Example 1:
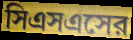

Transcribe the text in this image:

সিএসএসের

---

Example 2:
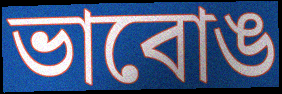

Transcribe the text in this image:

ভাবোঙ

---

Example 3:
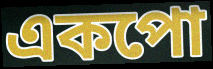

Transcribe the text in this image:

একপো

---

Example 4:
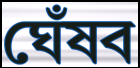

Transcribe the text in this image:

ঘেঁষব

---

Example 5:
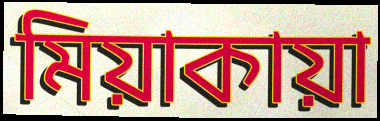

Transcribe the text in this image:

মিয়াকায়া